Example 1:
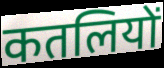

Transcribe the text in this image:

कतलियों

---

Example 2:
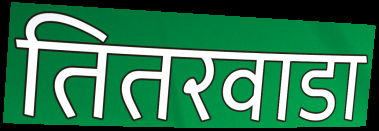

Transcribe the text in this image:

तितरवाडा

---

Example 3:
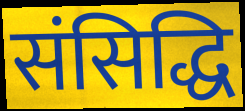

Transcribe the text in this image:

संसिद्धि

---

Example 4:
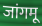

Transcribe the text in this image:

जांगमू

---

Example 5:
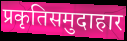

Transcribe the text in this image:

प्रकृतिसमुदाहार